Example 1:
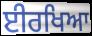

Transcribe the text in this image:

ਈਰਖਿਆ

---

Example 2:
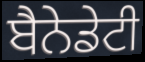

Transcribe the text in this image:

ਬੈਨੇਡੇਟੀ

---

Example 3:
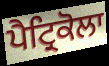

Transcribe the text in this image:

ਪੈਟ੍ਰਿਕੋਲਾ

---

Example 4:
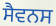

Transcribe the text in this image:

ਸੈਵਨਸ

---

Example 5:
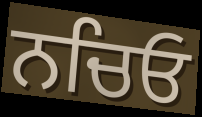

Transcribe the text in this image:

ਨਚਿਓ